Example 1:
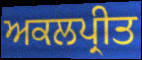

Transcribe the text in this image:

ਅਕਲਪ੍ਰੀਤ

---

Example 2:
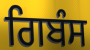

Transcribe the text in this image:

ਗਿਬੰਸ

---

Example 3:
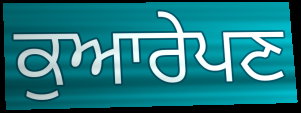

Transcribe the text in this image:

ਕੁਆਰੇਪਣ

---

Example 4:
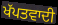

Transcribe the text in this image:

ਖੱਪਤਵਾਦੀ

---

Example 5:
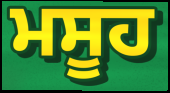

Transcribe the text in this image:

ਮਸੂਹ